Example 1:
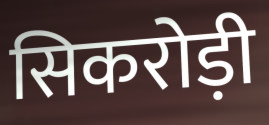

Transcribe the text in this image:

सिकरोड़ी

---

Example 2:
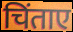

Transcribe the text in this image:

चिंताए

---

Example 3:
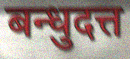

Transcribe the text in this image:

बन्धुदत्त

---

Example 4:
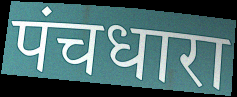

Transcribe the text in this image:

पंचधारा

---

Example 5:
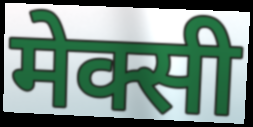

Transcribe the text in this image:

मेक्सी